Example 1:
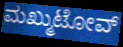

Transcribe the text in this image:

ಮಖ್ಮುಟೋವ್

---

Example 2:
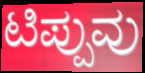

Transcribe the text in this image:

ಟಿಪ್ಪುವು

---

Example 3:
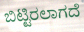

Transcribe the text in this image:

ಬಿಟ್ಟಿರಲಾಗದೆ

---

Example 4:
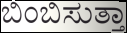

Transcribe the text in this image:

ಬಿಂಬಿಸುತ್ತಾ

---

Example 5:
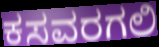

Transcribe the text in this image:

ಕಸವರಗಲಿ